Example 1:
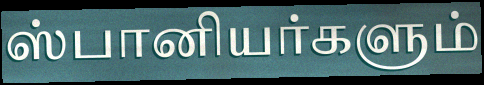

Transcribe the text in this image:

ஸ்பானியர்களும்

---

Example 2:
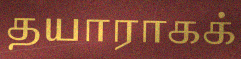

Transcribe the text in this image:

தயாராகக்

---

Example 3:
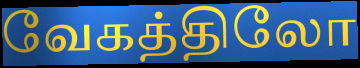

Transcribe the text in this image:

வேகத்திலோ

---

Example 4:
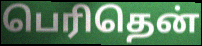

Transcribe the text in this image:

பெரிதென்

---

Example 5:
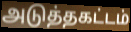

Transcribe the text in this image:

அடுத்தகட்டம்